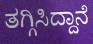
ತಗ್ಗಿಸಿದ್ದಾನೆ